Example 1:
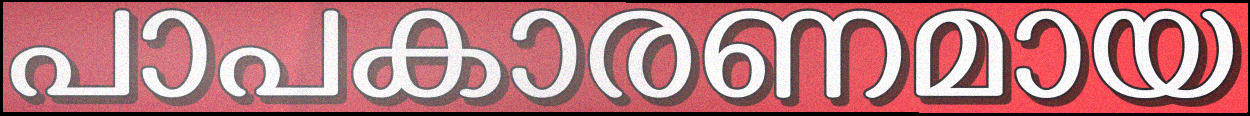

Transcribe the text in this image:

പാപകാരണമായ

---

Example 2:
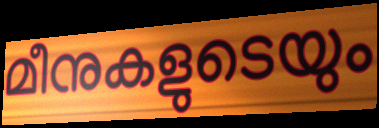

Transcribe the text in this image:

മീനുകളുടെയും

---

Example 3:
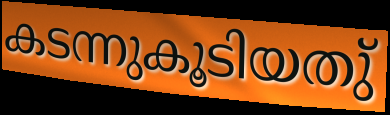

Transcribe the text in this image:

കടന്നുകൂടിയതു്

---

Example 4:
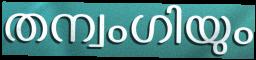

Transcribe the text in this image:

തന്വംഗിയും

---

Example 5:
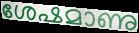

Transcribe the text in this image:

ശേഷമാണു